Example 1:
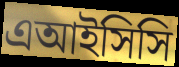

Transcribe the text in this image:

এআইসিসি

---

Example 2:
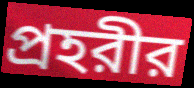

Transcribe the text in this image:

প্রহরীর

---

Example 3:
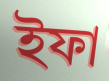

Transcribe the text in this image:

ইফা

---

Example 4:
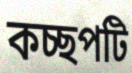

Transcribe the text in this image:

কচ্ছপটি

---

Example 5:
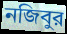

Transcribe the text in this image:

নজিবুর